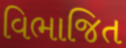
વિભાજિત